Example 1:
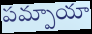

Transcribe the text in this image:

పమ్పాయా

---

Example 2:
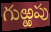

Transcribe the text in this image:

గుఱ్ఱపు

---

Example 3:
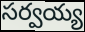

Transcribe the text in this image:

సర్వయ్య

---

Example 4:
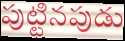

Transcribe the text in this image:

పుట్టినపుడు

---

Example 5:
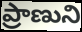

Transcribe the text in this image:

ప్రాణుని